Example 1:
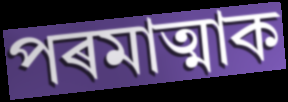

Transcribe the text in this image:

পৰমাত্মাক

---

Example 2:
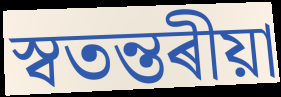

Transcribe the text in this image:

স্বতন্তৰীয়া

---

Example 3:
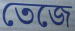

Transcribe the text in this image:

তেজে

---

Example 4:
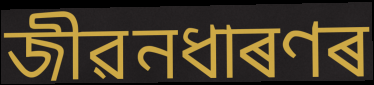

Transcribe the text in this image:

জীৱনধাৰণৰ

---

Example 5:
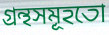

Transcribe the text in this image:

গ্ৰন্থসমূহতো